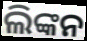
ଲିଙ୍କନ